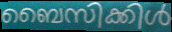
ബൈസിക്കിൾ